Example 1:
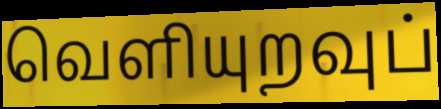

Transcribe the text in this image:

வெளியுறவுப்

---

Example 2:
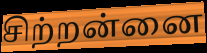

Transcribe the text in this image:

சிற்றன்னை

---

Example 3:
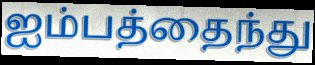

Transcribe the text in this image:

ஐம்பத்தைந்து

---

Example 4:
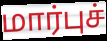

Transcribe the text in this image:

மார்புச்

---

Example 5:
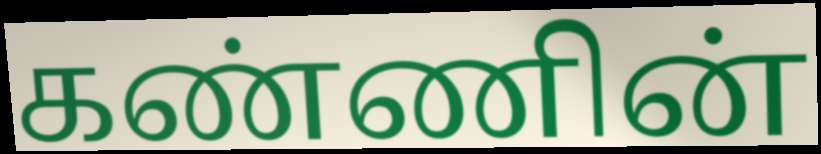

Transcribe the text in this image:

கண்ணின்